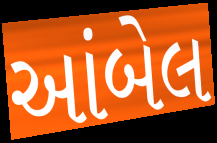
આંબેલ